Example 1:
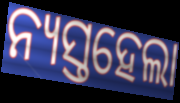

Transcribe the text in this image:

ନ୍ୟସ୍ତହେଲା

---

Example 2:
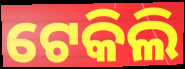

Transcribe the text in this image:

ଟେକିଲି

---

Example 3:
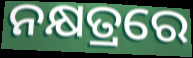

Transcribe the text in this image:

ନକ୍ଷତ୍ରରେ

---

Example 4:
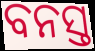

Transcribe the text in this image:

ବନସ୍ତ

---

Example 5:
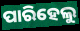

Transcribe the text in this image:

ପାରିହେଲୁ